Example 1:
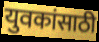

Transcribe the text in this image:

युवकांसाठी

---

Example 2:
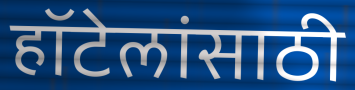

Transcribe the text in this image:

हॉटेलांसाठी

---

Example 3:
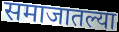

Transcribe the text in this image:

समाजातल्‍या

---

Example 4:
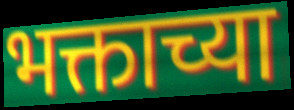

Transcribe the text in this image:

भक्ताच्या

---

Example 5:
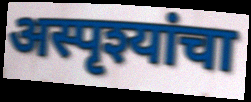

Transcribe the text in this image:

अस्पृश्यांचा